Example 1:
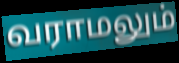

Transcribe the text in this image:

வராமலும்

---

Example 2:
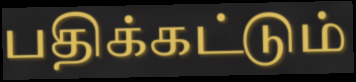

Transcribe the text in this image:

பதிக்கட்டும்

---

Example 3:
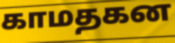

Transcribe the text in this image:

காமதகன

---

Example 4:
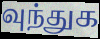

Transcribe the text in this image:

வுந்துக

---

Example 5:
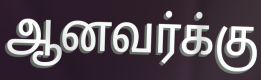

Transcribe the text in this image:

ஆனவர்க்கு